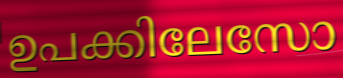
ഉപക്കിലേസോ